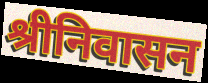
श्रीनिवासन